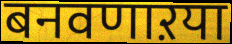
बनवणाऱया